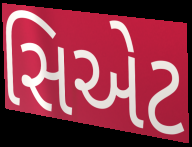
સિએટ